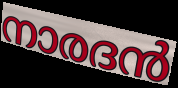
നാരദൻ